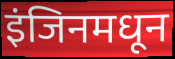
इंजिनमधून